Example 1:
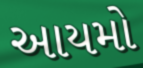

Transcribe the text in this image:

આયમો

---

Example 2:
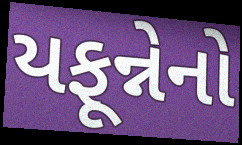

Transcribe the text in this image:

યફૂન્નેનો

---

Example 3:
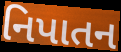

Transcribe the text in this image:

નિપાતન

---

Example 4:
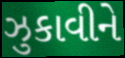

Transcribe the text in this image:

ઝુકાવીને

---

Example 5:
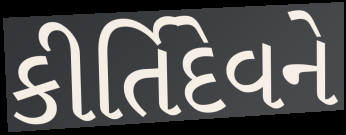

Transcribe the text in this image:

કીર્તિદેવને